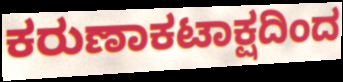
ಕರುಣಾಕಟಾಕ್ಷದಿಂದ